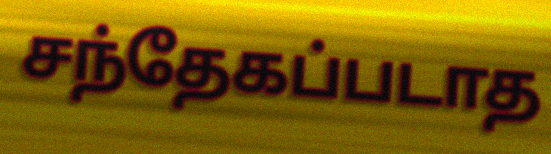
சந்தேகப்படாத